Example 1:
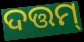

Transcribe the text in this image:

ଦତ୍ତମ୍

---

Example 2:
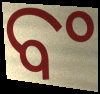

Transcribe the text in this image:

ବଂ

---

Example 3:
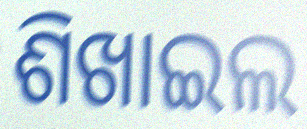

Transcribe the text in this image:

ଶିଖାଇଲ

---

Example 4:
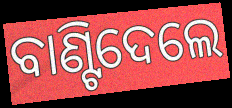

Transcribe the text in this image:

ବାଣ୍ଟିଦେଲେ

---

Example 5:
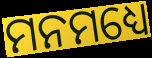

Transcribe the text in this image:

ମନମଧ୍ୟେ